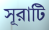
সূরাটি